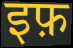
इफ़